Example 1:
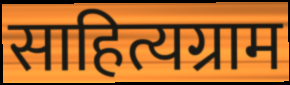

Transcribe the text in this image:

साहित्यग्राम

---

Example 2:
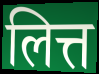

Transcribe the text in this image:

लित्त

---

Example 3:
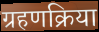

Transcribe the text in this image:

ग्रहणक्रिया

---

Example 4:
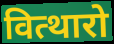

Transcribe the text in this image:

वित्थारो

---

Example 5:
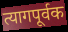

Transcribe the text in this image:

त्यागपूर्वक